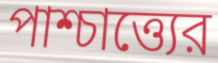
পাশ্চাত্ত্যের